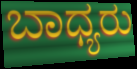
ಬಾಧ್ಯರು